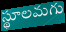
స్థూలమగు